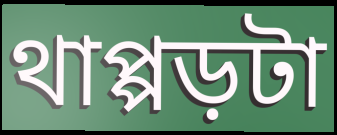
থাপ্পড়টা